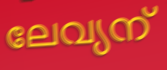
ലേവ്യന്